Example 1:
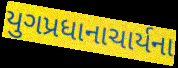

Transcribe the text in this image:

યુગપ્રધાનાચાર્યના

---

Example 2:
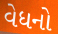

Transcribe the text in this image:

વેધનો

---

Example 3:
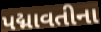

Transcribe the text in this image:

પદ્માવતીના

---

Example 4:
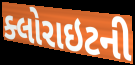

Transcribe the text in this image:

ક્લોરાઇટની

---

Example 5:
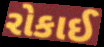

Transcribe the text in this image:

રોકાઈ